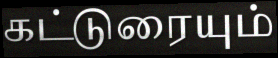
கட்டுரையும்